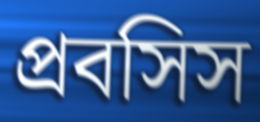
প্রবসিস